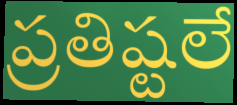
ప్రతిష్టలే